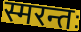
स्मरन्तः